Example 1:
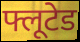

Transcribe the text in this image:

फ्लूटेड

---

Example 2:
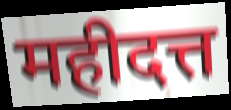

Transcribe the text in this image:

महीदत्त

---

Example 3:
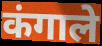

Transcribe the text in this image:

कंगाले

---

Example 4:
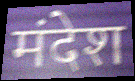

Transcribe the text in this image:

मंदेश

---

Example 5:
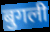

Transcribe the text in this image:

बुगली